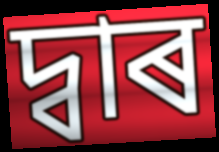
দ্বাৰ